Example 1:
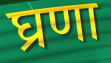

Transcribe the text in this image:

घ्रणा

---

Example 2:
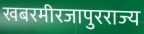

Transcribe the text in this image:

खबरमीरजापुरराज्य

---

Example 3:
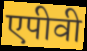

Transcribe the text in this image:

एपीवी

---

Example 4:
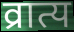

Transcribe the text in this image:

व्रात्य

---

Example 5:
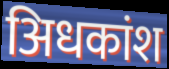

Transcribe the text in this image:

अिधकांश